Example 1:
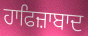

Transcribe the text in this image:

ਹਾਫਿਜ਼ਾਬਾਦ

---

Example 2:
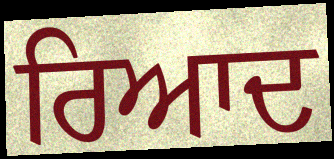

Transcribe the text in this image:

ਰਿਆਦ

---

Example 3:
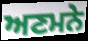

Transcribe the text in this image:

ਅਣਮਨੇ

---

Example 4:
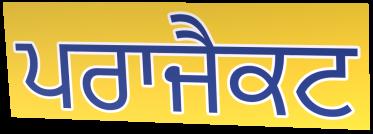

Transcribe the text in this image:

ਪਰਾਜੈਕਟ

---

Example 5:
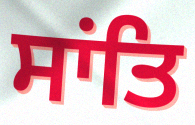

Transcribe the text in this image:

ਸਾਂਤਿ